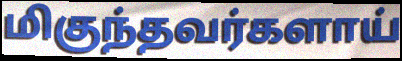
மிகுந்தவர்களாய்